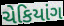
ચેકિયાંગ